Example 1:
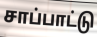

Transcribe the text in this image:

சாப்பாட்டு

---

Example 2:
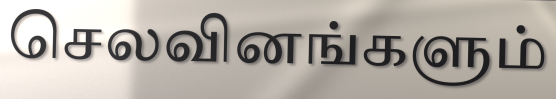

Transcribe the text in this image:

செலவினங்களும்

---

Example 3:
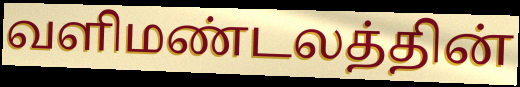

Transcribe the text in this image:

வளிமண்டலத்தின்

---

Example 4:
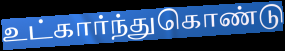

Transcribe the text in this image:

உட்கார்ந்துகொண்டு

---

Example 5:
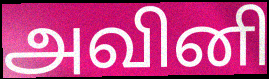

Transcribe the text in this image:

அவினி